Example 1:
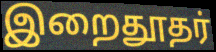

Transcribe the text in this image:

இறைதூதர்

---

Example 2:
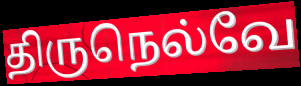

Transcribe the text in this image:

திருநெல்வே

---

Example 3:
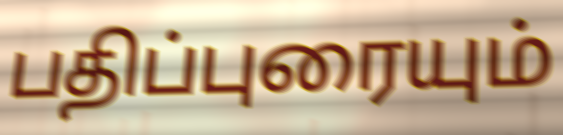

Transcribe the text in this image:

பதிப்புரையும்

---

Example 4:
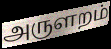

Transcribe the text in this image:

அருளறம்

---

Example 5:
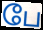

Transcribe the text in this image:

பே